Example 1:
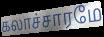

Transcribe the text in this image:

கலாச்சாரமே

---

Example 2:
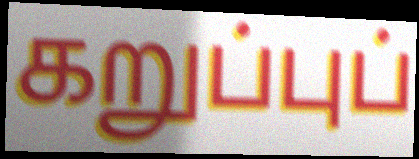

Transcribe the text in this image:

கறுப்புப்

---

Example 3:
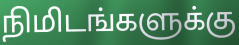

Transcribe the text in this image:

நிமிடங்களுக்கு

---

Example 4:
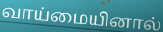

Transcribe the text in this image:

வாய்மையினால்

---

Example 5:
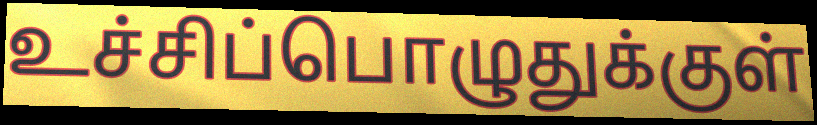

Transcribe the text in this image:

உச்சிப்பொழுதுக்குள்